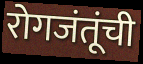
रोगजंतूंची